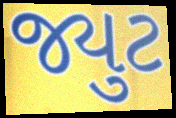
જ્યુટ